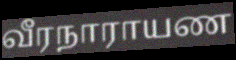
வீரநாராயண